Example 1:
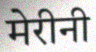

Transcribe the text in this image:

मेरीनी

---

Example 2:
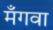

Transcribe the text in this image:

मँगवा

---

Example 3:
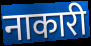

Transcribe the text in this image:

नाकारी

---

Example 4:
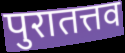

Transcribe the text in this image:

पुरातत्तव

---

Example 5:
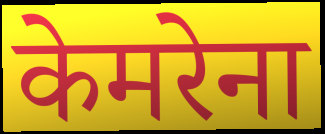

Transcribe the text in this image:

केमरेना